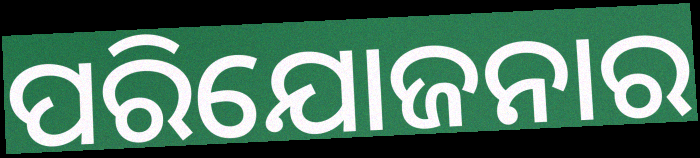
ପରିଯୋଜନାର